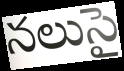
నలుసై